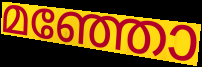
മഞ്ഞോ